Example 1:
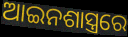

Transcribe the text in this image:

ଆଇନଶାସ୍ତ୍ରରେ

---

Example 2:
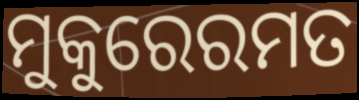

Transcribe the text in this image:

ମୁକୁରେରମତ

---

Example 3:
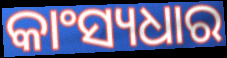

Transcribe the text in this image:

କାଂସ୍ୟଧାର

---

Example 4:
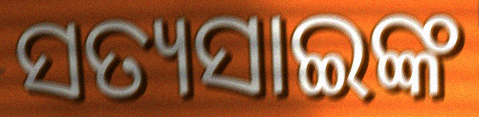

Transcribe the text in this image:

ସତ୍ୟସାଇଙ୍କ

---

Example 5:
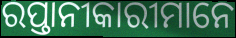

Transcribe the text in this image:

ରପ୍ତାନୀକାରୀମାନେ